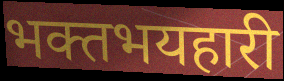
भक्तभयहारी